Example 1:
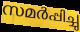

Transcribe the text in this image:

സമർപ്പിച്ചു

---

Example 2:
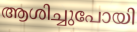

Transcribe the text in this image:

ആശിച്ചുപോയി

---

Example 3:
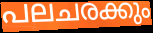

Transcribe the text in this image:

പലചരക്കും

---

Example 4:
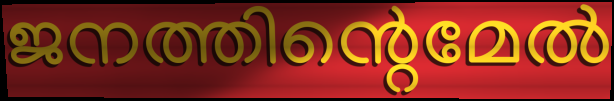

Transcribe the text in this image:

ജനത്തിന്റെമേൽ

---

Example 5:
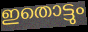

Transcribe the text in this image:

ഇതൊട്ടും